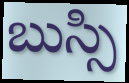
బుస్సి